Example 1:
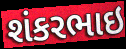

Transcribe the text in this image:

શંકરભાઇ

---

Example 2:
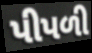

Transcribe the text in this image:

પીપળી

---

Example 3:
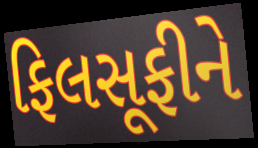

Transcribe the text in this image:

ફિલસૂફીને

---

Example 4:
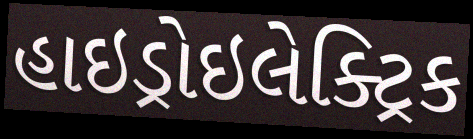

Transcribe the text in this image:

હાઇડ્રોઇલેક્ટ્રિક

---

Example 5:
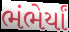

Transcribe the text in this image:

ભંભેર્યાં